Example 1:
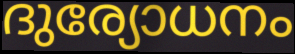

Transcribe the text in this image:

ദുര്യോധനം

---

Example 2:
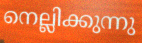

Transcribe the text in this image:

നെല്ലിക്കുന്നു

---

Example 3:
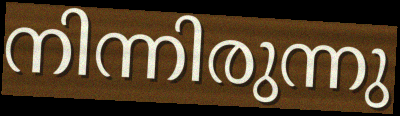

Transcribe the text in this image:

നിന്നിരുന്നു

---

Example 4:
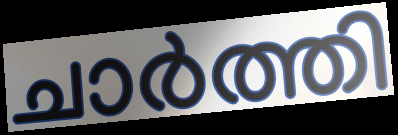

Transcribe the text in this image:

ചാർത്തി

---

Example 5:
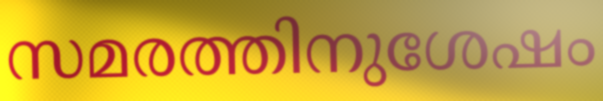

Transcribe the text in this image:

സമരത്തിനുശേഷം